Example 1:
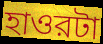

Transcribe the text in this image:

হাওরটা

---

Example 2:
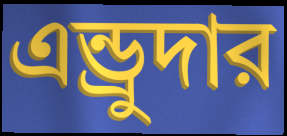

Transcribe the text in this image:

এন্ড্রুদার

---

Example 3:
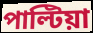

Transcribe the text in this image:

পাল্টিয়া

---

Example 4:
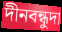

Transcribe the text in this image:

দীনবন্ধুদা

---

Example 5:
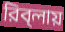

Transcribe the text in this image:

রিব্‌লায়